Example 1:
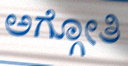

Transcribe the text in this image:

ಅಗ್ಗೋತಿ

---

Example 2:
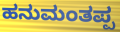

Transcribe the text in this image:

ಹನುಮಂತಪ್ಪ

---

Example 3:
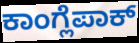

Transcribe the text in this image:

ಕಾಂಗ್ಲೆಪಾಕ್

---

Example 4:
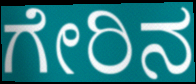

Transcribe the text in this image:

ಗೇರಿನ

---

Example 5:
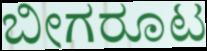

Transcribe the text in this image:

ಬೀಗರೂಟ